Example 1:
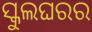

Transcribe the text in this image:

ସ୍କୁଲଘରର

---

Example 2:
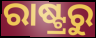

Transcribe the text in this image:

ରାଷ୍ଟ୍ରରୁ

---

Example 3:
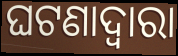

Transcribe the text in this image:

ଘଟଣାଦ୍ୱାରା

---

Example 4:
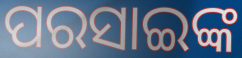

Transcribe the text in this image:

ପରସାଇଙ୍କ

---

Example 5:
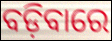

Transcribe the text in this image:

ବଡ଼ିବାରେ